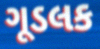
ગૂડલક